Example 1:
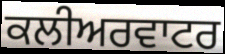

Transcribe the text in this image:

ਕਲੀਅਰਵਾਟਰ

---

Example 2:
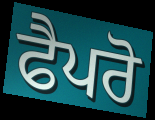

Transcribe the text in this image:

ਫੈਪਰੋ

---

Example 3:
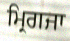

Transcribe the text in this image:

ਮ੍ਰਿਗਜਾ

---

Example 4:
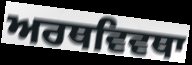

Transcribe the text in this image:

ਅਰਥਵਿਵਥਾ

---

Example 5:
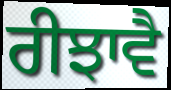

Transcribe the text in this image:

ਰੀਝਾਵੈ